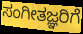
ಸಂಗೀತಜ್ಞರಿಗೆ